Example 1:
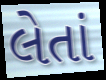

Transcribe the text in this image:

લેતાં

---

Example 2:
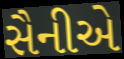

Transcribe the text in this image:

સૈનીએ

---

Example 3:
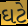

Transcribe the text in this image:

ઘટે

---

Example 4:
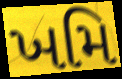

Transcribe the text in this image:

ખમિ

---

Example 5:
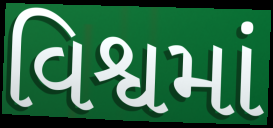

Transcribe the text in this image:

વિશ્વમાં